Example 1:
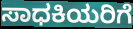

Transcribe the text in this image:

ಸಾಧಕಿಯರಿಗೆ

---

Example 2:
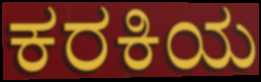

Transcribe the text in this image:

ಕರಕಿಯ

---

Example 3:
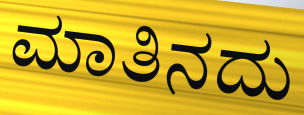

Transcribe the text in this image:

ಮಾತಿನದು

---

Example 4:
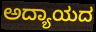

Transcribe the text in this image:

ಅದ್ಯಾಯದ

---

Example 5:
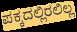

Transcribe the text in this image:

ಪಕ್ಕದಲ್ಲಿರಲಿಲ್ಲ